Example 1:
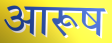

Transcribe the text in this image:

आरूष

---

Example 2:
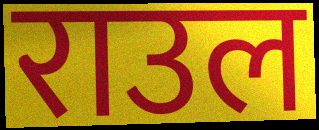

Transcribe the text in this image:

राउल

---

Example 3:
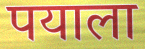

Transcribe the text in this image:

पयाला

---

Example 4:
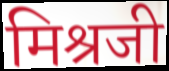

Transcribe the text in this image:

मिश्रजी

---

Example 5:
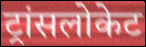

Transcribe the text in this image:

ट्रांसलोकेट